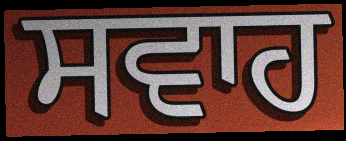
ਸਵਾਹ